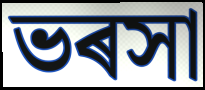
ভৰসা